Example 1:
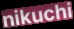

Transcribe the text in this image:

nikuchi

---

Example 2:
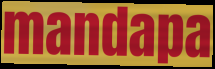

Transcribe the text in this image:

mandapa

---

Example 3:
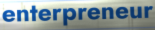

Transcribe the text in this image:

enterpreneur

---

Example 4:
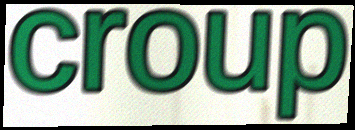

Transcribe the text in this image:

croup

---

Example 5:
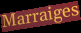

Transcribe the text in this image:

Marraiges